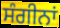
ਸੰਗੀਨਾਂ